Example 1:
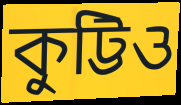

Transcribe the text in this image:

কুট্টিও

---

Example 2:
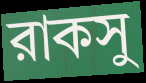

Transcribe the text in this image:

রাকসু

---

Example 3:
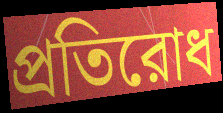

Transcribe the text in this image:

প্রতিরোধ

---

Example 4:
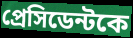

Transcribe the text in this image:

প্রেসিডেন্টকে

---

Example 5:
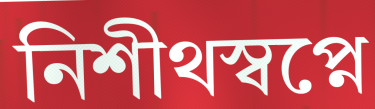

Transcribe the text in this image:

নিশীথস্বপ্নে